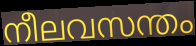
നീലവസന്തം